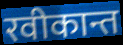
रवीकान्त